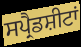
ਸਪ੍ਰੈਡਸ਼ੀਟਾਂ